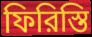
ফিরিস্তি